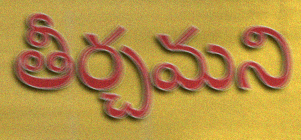
తీర్చమని